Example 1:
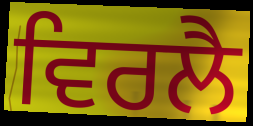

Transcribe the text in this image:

ਵਿਰਲੈ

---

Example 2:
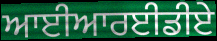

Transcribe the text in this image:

ਆਈਆਰਈਡੀਏ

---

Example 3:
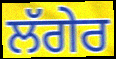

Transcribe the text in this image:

ਲੱਗੇਰ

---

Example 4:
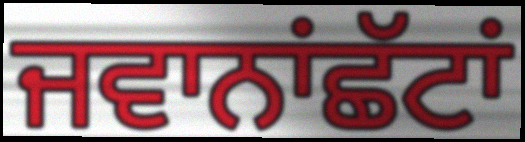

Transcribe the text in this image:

ਜਵਾਨਾਂਛੱਟਾਂ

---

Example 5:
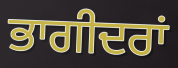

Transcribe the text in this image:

ਭਾਗੀਦਰਾਂ